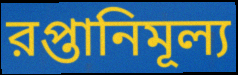
রপ্তানিমূল্য